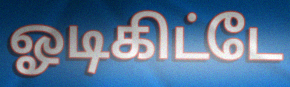
ஓடிகிட்டே